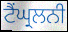
ਟੈਂਘ੍ਰਲਨੀ